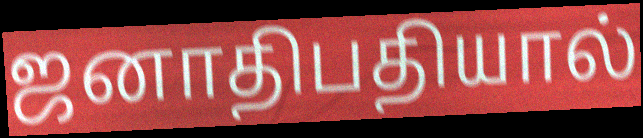
ஜனாதிபதியால்